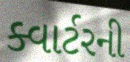
ક્વાર્ટરની